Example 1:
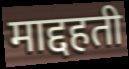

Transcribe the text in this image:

माद्दहती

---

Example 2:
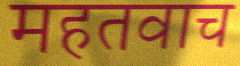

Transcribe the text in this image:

महतवाच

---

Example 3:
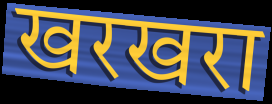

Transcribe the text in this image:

खरखरा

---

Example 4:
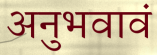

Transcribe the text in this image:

अनुभवावं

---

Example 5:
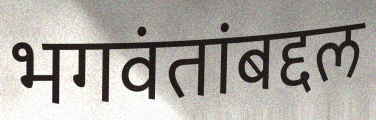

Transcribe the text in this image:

भगवंतांबद्दल